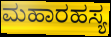
ಮಹಾರಹಸ್ಯ